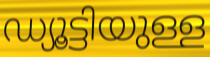
ഡ്യൂട്ടിയുള്ള